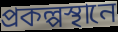
প্রকল্পস্থানে